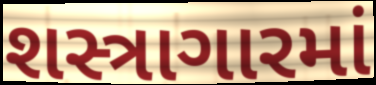
શસ્ત્રાગારમાં